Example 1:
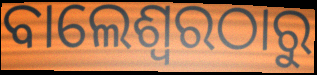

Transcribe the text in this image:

ବାଲେଶ୍ବରଠାରୁ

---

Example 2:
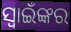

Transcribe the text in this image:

ସ୍ଵାଇଁଙ୍କର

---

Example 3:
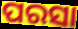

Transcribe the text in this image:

ପରସା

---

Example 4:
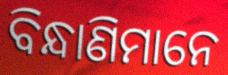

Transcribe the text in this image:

ବିନ୍ଧାଣିମାନେ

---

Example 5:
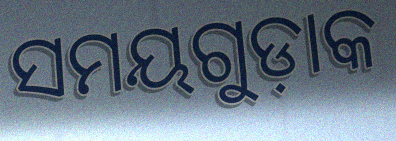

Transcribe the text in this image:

ସମୟଗୁଡ଼ାକ